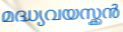
മദ്ധ്യവയസ്ക്കൻ